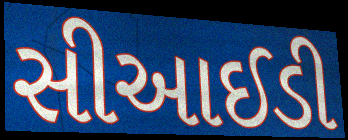
સીઆઈડી